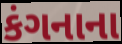
કંગનાના